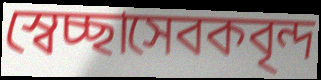
স্বেচ্ছাসেবকবৃন্দ